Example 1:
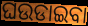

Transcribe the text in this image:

ଘଉଡାଇବା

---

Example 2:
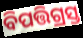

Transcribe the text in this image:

ବିପତ୍ତିଗ୍ରସ୍ତ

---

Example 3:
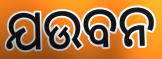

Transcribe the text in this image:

ଯଉବନ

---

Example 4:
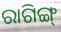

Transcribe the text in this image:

ରାଗିଙ୍ଗ୍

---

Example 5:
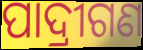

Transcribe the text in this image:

ପାଦ୍ରୀଗଣ